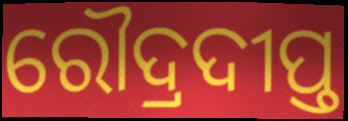
ରୌଦ୍ରଦୀପ୍ତ